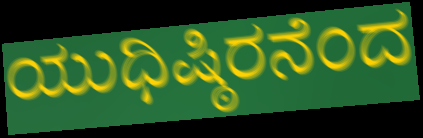
ಯುಧಿಷ್ಠಿರನೆಂದ